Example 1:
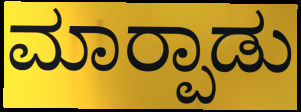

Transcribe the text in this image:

ಮಾರ‍್ಪಾಡು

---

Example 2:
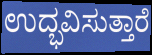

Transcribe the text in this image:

ಉದ್ಭವಿಸುತ್ತಾರೆ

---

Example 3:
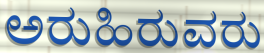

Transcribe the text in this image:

ಅರುಹಿರುವರು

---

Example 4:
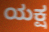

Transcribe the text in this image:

ಯಕ್ಷ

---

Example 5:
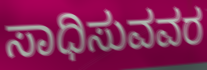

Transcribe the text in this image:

ಸಾಧಿಸುವವರ